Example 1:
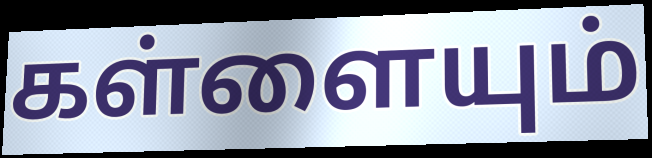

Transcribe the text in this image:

கள்ளையும்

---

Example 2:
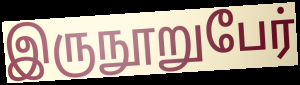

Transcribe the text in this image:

இருநூறுபேர்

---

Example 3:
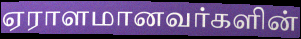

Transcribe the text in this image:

ஏராளமானவர்களின்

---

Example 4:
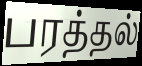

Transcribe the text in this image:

பரத்தல்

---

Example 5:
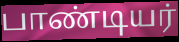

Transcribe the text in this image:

பாண்டியர்